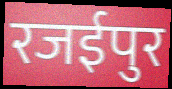
रजईपुर